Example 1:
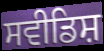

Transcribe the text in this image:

ਸਵੀਡਿਸ਼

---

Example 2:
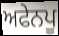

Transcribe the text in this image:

ਅਫੇਨਪੂ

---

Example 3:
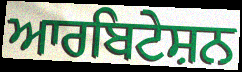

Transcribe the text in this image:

ਆਰਬਿਟੇਸ਼ਨ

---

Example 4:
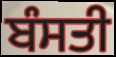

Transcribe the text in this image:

ਬੰਸਤੀ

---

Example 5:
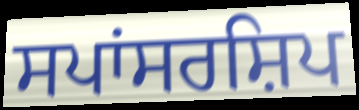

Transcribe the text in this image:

ਸਪਾਂਸਰਸ਼ਿਪ